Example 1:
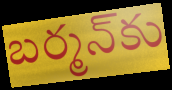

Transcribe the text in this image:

బర్మన్‌కు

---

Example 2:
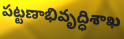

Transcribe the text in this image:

పట్టణాభివృద్ధిశాఖ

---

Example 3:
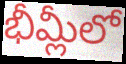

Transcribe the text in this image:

భీమ్లీలో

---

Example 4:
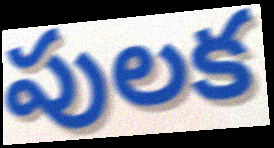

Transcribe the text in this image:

పులక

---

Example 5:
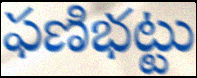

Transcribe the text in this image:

ఫణిభట్టు